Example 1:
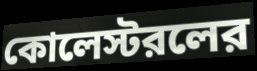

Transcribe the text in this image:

কোলেস্টরলের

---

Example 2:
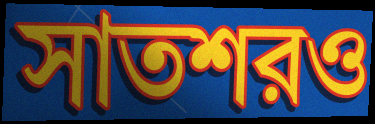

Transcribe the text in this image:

সাতশরও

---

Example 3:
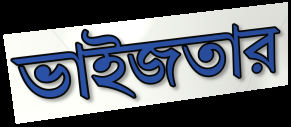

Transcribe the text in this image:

ভাইজতার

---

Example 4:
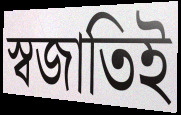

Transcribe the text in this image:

স্বজাতিই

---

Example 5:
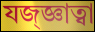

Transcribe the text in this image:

যজ্জ্ঞাত্বা